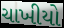
ચાખીયો